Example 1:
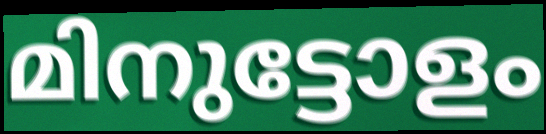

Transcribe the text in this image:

മിനുട്ടോളം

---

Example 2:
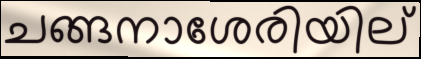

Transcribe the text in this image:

ചങ്ങനാശേരിയില്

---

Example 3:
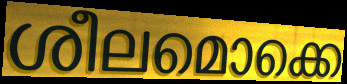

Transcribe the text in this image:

ശീലമൊക്കെ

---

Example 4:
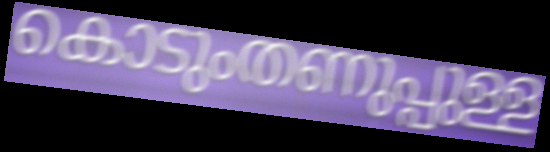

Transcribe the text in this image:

കൊടുംതണുപ്പുള്ള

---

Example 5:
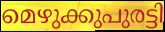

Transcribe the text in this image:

മെഴുക്കുപുരട്ടി